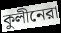
কুলীনেরা